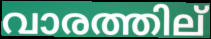
വാരത്തില്